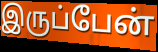
இருப்பேன்